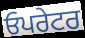
ਓਪਰੇਟਰ